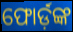
ଫୋର୍ଡ଼ଙ୍କ